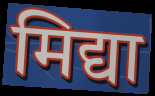
मिद्या